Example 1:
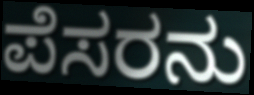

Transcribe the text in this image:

ಪೆಸರನು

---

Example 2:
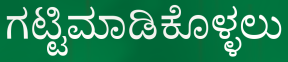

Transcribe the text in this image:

ಗಟ್ಟಿಮಾಡಿಕೊಳ್ಳಲು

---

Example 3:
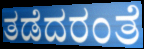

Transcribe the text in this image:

ತಡೆದರಂತೆ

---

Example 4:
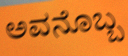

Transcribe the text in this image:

ಅವನೊಬ್ಬ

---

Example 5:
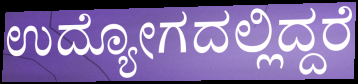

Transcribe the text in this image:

ಉದ್ಯೋಗದಲ್ಲಿದ್ದರೆ